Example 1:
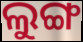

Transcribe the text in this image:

ଲୁଙ୍ଗ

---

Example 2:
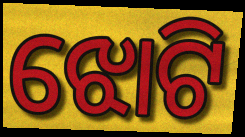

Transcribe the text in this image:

ଝୋଟି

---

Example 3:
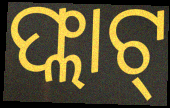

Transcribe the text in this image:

ଫ୍ଲାଟ୍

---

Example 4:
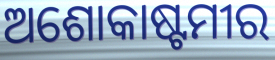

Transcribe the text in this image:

ଅଶୋକାଷ୍ଟମୀର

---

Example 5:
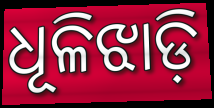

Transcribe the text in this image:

ଧୂଳିଝାଡ଼ି